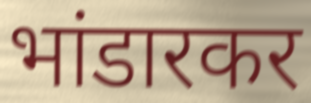
भांडारकर